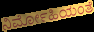
ನಿರ್ಮೋಹಿಯಂತೆ